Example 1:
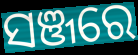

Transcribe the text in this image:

ସଞ୍ଜରେ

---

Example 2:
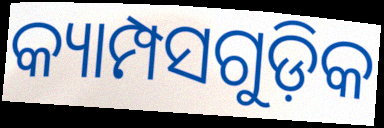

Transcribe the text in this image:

କ୍ୟାମ୍ପସଗୁଡ଼ିକ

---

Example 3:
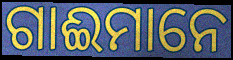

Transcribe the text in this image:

ଗାଈମାନେ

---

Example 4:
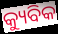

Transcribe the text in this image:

କ୍ୟୁବିକ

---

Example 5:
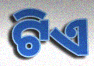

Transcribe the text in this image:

ଟିଏ